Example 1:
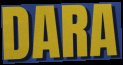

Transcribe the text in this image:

DARA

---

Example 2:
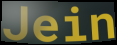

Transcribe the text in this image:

Jein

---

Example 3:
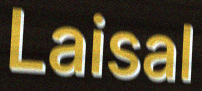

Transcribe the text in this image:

Laisal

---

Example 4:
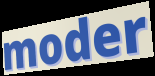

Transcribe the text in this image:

moder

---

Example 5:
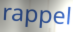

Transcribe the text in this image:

rappel